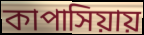
কাপাসিয়ায়